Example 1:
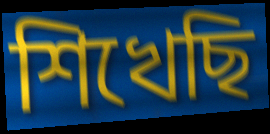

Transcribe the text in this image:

শিখেছি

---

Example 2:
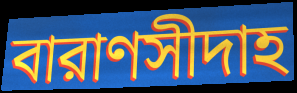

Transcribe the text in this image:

বারাণসীদাহ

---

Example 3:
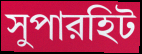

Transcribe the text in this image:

সুপারহিট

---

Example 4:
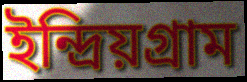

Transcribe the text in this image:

ইন্দ্রিয়গ্রাম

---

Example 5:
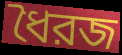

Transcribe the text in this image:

ধৈরজ